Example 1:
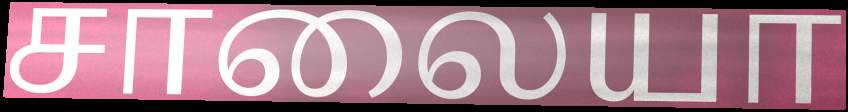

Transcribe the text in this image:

சாலையா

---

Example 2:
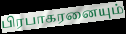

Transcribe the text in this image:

பிரபாகரனையும்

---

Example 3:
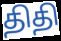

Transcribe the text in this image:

திதி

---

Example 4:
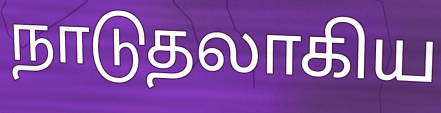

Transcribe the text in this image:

நாடுதலாகிய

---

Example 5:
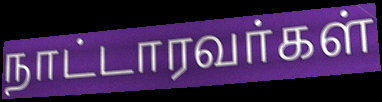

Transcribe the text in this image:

நாட்டாரவர்கள்